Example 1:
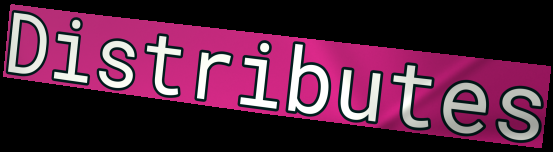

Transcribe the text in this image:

Distributes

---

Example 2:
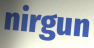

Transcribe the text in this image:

nirgun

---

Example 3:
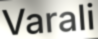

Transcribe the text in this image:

Varali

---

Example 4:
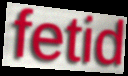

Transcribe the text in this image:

fetid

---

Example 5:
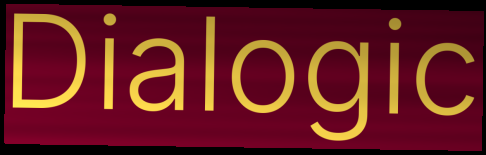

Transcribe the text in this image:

Dialogic